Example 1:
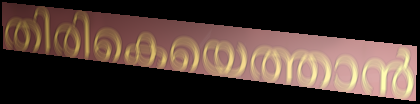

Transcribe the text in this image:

തിരികെയെത്താൻ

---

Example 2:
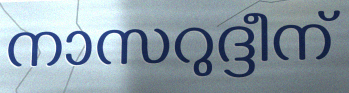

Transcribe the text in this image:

നാസറുദ്ദീന്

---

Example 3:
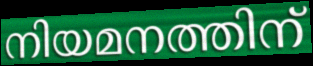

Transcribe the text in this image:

നിയമനത്തിന്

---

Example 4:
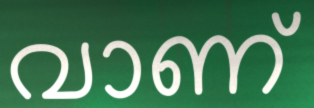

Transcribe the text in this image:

വാണ്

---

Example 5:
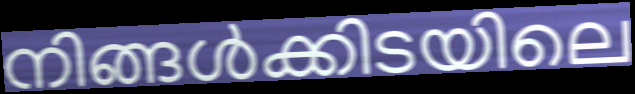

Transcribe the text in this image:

നിങ്ങൾക്കിടയിലെ